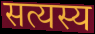
सत्यस्य